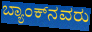
ಬ್ಯಾಂಕ್‌ನವರು